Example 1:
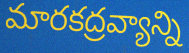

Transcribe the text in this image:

మారకద్రవ్యాన్ని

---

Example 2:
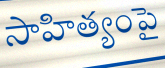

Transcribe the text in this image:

సాహిత్యంపై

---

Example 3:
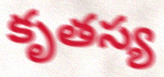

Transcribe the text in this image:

కృతస్య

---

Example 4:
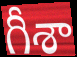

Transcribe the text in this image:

గీశా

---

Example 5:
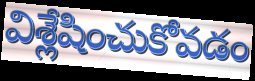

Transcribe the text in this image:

విశ్లేషించుకోవడం